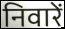
निवारें